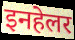
इनहेलर